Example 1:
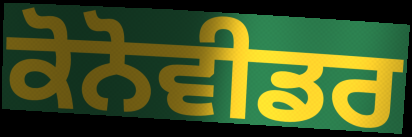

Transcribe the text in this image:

ਕੋਨੋਵੀਡਰ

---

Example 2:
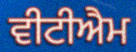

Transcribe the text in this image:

ਵੀਟੀਐਮ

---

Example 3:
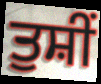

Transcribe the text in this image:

ਤੁਸ਼ੀਂ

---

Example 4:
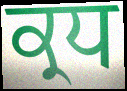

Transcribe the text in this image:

ਕ੍ਰਧ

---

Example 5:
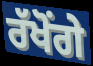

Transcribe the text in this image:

ਰੱਖੋਂਗੇ